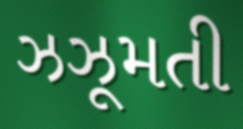
ઝઝૂમતી